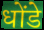
धोंडे